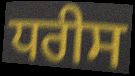
ਧਰੀਸ